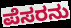
ಪೆಸರನು